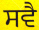
ਸਵੈ